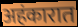
अहंकारात